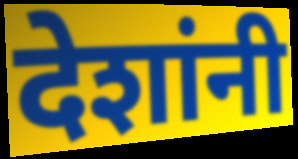
देशांनी